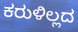
ಕರುಳಿಲ್ಲದ